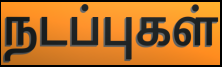
நடப்புகள்